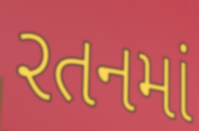
રતનમાં